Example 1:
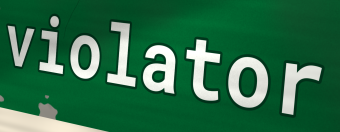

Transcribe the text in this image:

violator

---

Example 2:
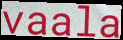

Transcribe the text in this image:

vaala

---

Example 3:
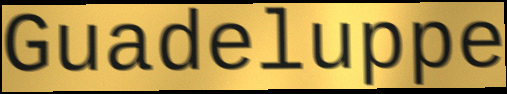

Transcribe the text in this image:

Guadeluppe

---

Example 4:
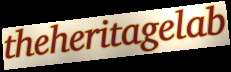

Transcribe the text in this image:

theheritagelab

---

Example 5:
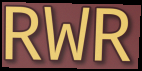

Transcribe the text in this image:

RWR